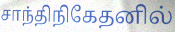
சாந்திநிகேதனில்